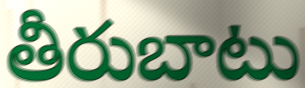
తీరుబాటు